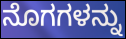
ನೊಗಗಳನ್ನು